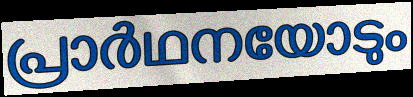
പ്രാർഥനയോടും